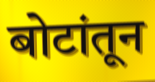
बोटांतून